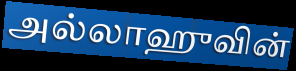
அல்லாஹுவின்